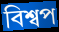
বিশ্বপ